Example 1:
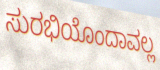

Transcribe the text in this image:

ಸುರಭಿಯೊಂದಾವಲ್ಲ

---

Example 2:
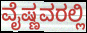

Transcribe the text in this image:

ವೈಷ್ಣವರಲ್ಲಿ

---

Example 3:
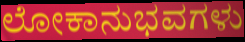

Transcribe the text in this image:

ಲೋಕಾನುಭವಗಳು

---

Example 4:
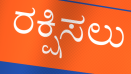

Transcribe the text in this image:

ರಕ್ಷಿಸಲು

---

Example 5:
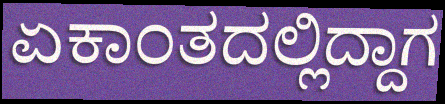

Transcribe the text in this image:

ಏಕಾಂತದಲ್ಲಿದ್ದಾಗ